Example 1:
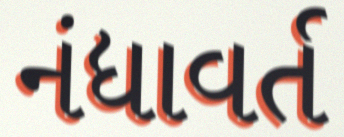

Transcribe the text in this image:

નંદ્યાવર્ત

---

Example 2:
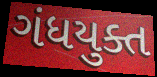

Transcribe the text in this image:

ગંધયુક્ત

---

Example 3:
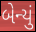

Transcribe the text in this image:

બેન્યું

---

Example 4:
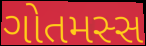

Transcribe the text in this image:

ગોતમસ્સ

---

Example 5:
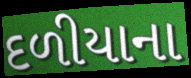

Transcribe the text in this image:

દળીયાના